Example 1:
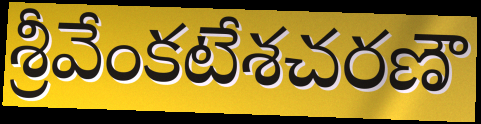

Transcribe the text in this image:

శ్రీవేంకటేశచరణౌ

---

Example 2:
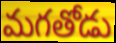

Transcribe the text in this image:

మగతోడు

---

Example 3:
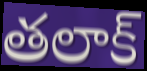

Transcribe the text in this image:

తలాక్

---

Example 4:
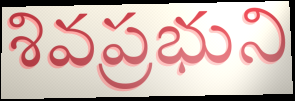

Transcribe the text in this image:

శివప్రభుని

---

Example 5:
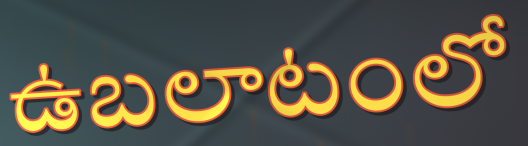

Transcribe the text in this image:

ఉబలాటంలో